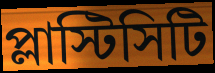
প্লাস্টিসিটি